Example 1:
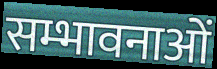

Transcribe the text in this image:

सम्भावनाओं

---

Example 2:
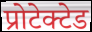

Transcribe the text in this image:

प्रोटेक्टेड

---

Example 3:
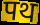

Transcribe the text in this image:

पथ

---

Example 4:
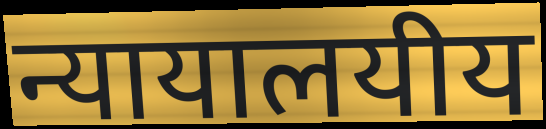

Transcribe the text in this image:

न्यायालयीय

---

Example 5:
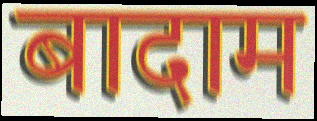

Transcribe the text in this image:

बादाम